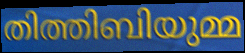
തിത്തിബിയുമ്മ